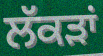
ਲੱਕੜਾਂ